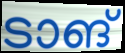
ടാങ്